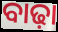
ବାଢ଼ା